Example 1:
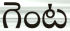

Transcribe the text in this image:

గెంట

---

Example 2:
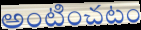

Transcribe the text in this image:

అంటించటం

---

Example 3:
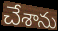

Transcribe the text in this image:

చేశాను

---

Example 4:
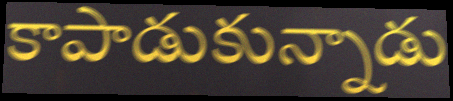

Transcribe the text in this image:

కాపాడుకున్నాడు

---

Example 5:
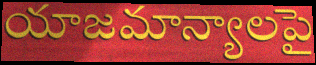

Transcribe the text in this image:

యాజమాన్యాలపై